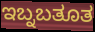
ಇಬ್ನಬತೂತ